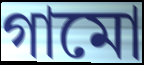
গামো